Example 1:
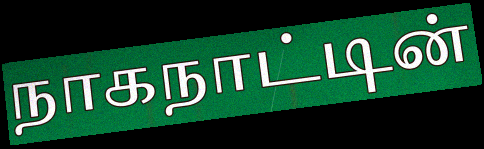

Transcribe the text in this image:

நாகநாட்டின்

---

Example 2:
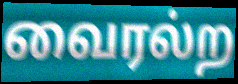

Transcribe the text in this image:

வைரல்ற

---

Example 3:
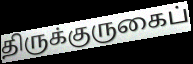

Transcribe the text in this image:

திருக்குருகைப்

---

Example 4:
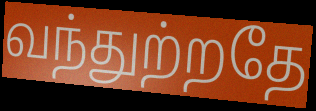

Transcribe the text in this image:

வந்துற்றதே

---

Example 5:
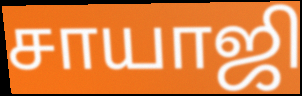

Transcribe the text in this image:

சாயாஜி